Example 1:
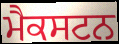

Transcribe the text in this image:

ਮੈਕਸਟਨ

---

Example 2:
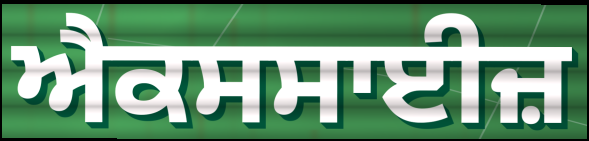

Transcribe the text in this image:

ਐਕਸਸਾਈਜ਼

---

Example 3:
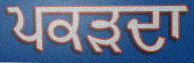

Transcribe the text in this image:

ਪਕੜਦਾ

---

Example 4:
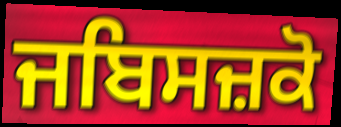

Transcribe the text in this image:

ਜਬਿਸਜ਼ਕੋ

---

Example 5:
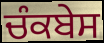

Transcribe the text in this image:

ਚੰਕਬੇਸ